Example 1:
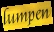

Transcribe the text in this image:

lumpen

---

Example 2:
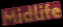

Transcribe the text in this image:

Midlife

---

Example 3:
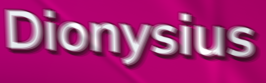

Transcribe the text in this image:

Dionysius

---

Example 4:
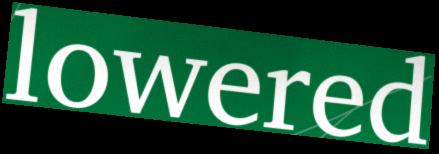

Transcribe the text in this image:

lowered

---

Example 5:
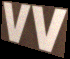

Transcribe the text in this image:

VV